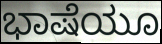
ಭಾಷೆಯೂ